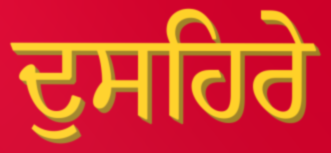
ਦੁਸਹਿਰੇ